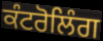
ਕੰਟਰੋਲਿੰਗ